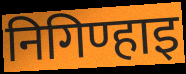
निगिण्हाइ